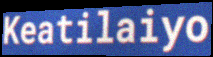
Keatilaiyo